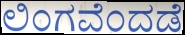
ಲಿಂಗವೆಂದಡೆ